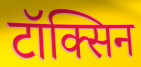
टॉक्सिन